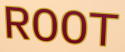
ROOT